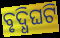
ବୃଦ୍ଧିଘଟି